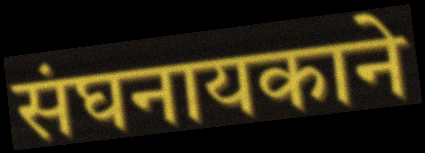
संघनायकाने